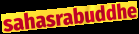
sahasrabuddhe